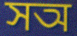
সঅ